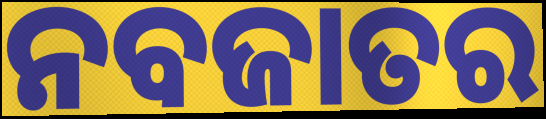
ନବଜାତର